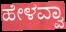
ಹೇಳವ್ವಾ